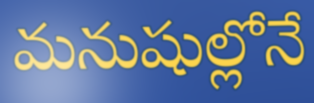
మనుషుల్లోనే